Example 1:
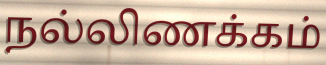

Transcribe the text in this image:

நல்லிணக்கம்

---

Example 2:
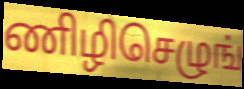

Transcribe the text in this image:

ணிழிசெழுங்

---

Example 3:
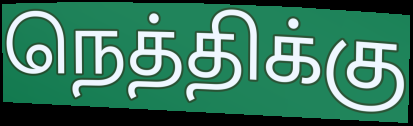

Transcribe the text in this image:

நெத்திக்கு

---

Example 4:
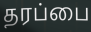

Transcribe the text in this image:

தரப்பை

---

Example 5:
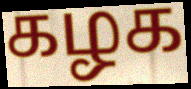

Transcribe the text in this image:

கழக